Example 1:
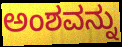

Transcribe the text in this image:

ಅಂಶವನ್ನು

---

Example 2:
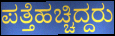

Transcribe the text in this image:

ಪತ್ತೆಹಚ್ಚಿದ್ದರು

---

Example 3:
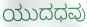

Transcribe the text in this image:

ಯುದಧವು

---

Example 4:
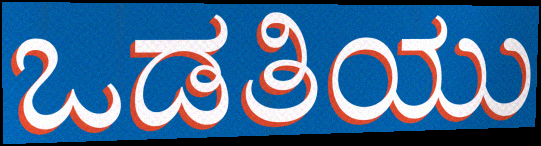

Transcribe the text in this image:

ಒಡತಿಯು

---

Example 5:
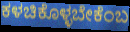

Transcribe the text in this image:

ಕಳಚಿಕೊಳ್ಳಬೇಕೆಂಬ